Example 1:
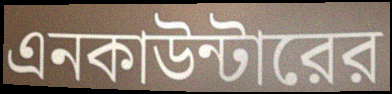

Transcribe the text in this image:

এনকাউন্টারের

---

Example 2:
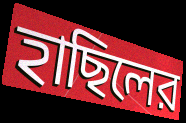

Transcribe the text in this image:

হাছিলের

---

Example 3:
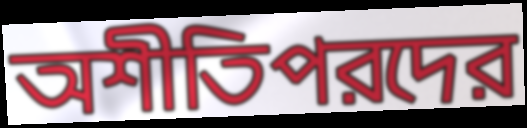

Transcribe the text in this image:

অশীতিপরদের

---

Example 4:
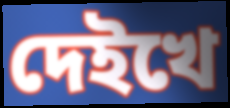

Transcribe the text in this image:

দেইখে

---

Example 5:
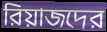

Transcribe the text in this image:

রিয়াজদের